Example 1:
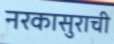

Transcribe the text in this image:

नरकासुराची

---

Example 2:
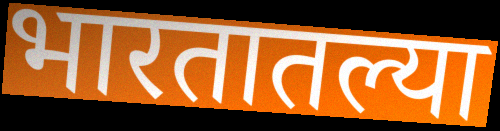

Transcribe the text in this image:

भारतातल्या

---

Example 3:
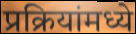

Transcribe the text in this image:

प्रक्रियांमध्ये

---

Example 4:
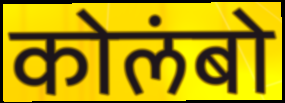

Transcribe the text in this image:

कोलंबो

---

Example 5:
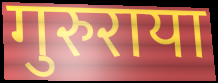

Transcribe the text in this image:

गुरुराया